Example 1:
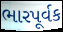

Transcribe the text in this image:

ભારપૂર્વક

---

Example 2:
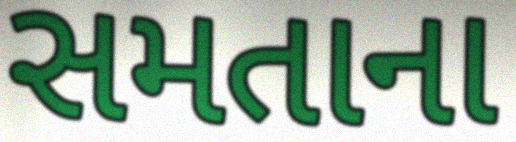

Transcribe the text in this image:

સમતાના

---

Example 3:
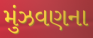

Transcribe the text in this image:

મુંઝવણના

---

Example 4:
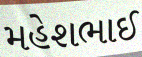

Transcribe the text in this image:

મહેશભાઈ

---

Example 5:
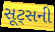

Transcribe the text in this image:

સૂટ્સની